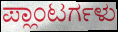
ಪ್ಲಾಂಟರ್ಗಳು